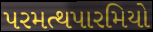
પરમત્થપારમિયો